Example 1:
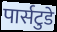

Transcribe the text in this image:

पार्सटुडे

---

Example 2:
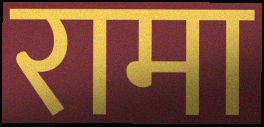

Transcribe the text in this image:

रामा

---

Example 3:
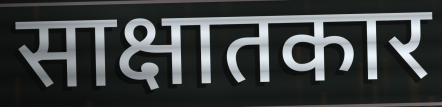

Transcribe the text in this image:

साक्षातकार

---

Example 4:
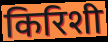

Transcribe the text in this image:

किरिशी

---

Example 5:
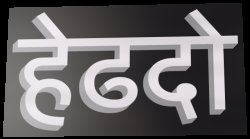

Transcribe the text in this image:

हेढदो